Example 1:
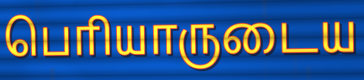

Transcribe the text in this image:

பெரியாருடைய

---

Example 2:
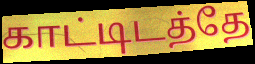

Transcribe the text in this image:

காட்டிடத்தே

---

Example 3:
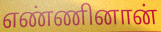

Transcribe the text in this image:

எண்ணினான்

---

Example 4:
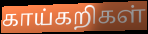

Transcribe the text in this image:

காய்கறிகள்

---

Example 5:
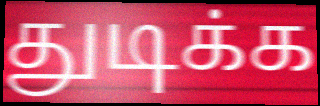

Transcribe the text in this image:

துடிக்க